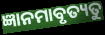
ଜ୍ଞାନମାବୃତ୍ୟତୁ